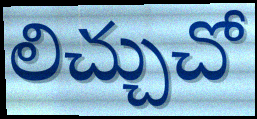
లిచ్చుచో